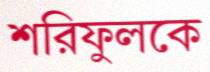
শরিফুলকে